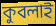
কুবলাই